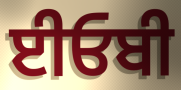
ਈਓਬੀ